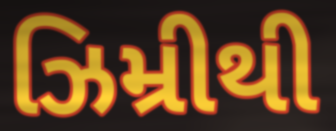
ઝિમ્રીથી